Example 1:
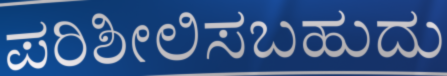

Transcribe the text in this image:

ಪರಿಶೀಲಿಸಬಹುದು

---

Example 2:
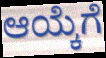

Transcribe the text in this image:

ಆಯ್ಕೆಗೆ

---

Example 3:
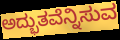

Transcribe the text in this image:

ಅದ್ಭುತವೆನ್ನಿಸುವ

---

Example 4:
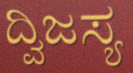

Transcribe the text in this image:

ದ್ವಿಜಸ್ಯ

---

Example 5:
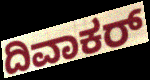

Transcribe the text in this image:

ದಿವಾಕರ್